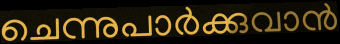
ചെന്നുപാർക്കുവാൻ